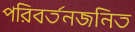
পরিবর্তনজনিত